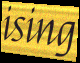
ising